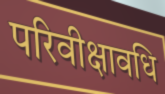
परिवीक्षावधि